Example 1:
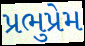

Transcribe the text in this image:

પ્રભુપ્રેમ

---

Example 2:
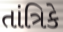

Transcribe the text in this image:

તાંત્રિકે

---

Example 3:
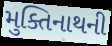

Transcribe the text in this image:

મુક્તિનાથની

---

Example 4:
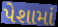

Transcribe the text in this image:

પેશામાં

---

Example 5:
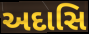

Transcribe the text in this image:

અદાસિ